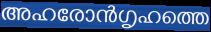
അഹരോൻഗൃഹത്തെ